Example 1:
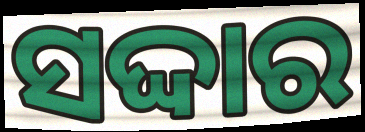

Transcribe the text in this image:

ସଦ୍ଦାର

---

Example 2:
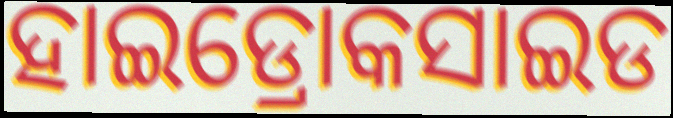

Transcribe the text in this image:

ହାଇଡ୍ରୋକସାଇଡ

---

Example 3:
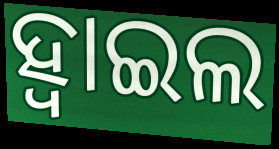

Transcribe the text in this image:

ହ୍ବାଇଲ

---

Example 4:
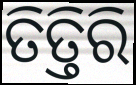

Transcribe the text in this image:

ତିତ୍ତିରି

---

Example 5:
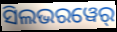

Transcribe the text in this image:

ସିଲଭରୱେର୍